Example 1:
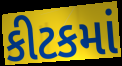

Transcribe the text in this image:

કીટકમાં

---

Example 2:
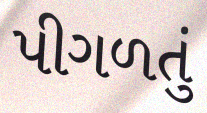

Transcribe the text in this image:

પીગળતું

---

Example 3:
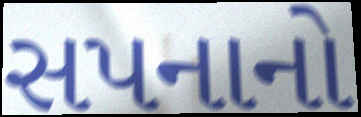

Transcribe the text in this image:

સપનાનો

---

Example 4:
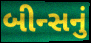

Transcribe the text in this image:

બીન્સનું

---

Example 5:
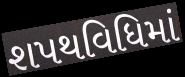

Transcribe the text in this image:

શપથવિધિમાં